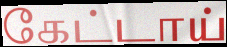
கேட்டாய்